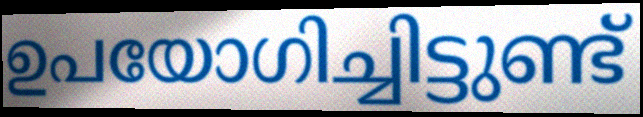
ഉപയോഗിച്ചിട്ടുണ്ട്